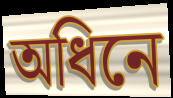
অধিনে